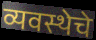
व्यवस्थेचे